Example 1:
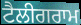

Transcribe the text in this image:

ਟੈਲੀਗਰਾਮ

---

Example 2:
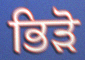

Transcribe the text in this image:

ਭਿੜੋ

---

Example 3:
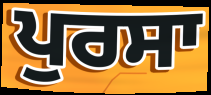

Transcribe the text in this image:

ਪੁਰਸਾ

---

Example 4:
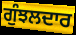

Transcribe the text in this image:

ਗੁੰਝਲਦਾਰ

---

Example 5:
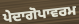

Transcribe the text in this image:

ਪੇਦਾਗੋਪਾਵਰਮ